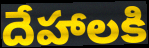
దేహాలకి